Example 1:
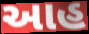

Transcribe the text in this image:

આહ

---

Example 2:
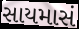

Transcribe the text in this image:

સાયમાસં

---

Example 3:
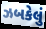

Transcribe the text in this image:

ઝબકેલું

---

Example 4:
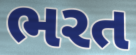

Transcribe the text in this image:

ભરત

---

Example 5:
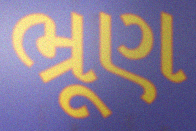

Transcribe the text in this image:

ભ્રૂણ